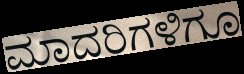
ಮಾದರಿಗಳಿಗೂ